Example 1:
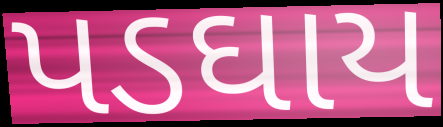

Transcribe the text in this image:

પડઘાય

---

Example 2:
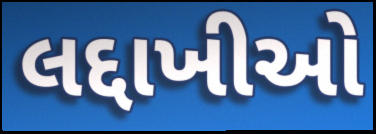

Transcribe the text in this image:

લદ્દાખીઓ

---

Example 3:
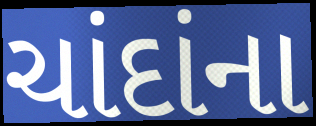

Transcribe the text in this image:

ચાંદાંના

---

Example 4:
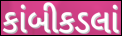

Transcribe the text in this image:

કાંબીકડલાં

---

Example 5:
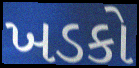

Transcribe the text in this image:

ખડકો